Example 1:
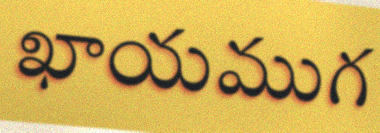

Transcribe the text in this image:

ఖాయముగ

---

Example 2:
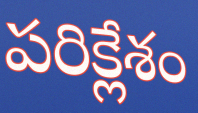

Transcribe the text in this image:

పరిక్లేశం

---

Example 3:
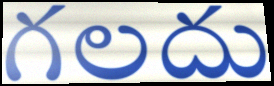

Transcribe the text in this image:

గలదు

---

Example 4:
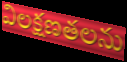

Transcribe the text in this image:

విలక్షణతలను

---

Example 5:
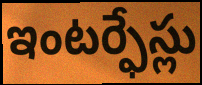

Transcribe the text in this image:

ఇంటర్ఫేస్లు